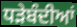
ਧੜੇਬੰਦੀਆਂ